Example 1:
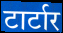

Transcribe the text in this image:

टार्टार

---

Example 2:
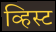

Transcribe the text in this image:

व्हिस्ट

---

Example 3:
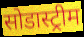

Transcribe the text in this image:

सोडास्ट्रीम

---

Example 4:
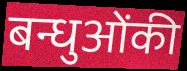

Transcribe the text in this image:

बन्धुओंकी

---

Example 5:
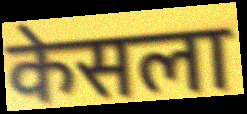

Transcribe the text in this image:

केसला